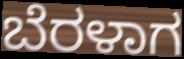
ಬೆರಳಾಗ